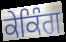
ਕੇਕਿੰਗ